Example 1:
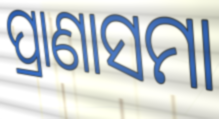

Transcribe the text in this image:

ପ୍ରାଣାସମା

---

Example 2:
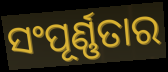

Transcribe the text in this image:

ସଂପୂର୍ଣ୍ଣତାର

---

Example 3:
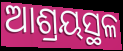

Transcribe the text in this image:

ଆଶ୍ରୟସ୍ଥଳ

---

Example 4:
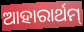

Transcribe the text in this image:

ଆହାରାର୍ଥମ୍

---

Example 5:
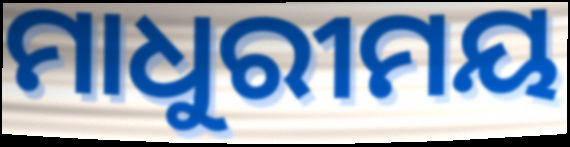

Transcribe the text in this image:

ମାଧୁରୀମୟ